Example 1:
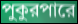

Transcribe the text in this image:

পুকুরপারে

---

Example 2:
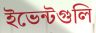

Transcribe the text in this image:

ইভেন্টগুলি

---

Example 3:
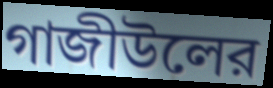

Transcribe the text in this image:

গাজীউলের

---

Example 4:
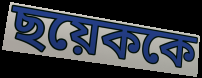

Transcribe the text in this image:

ছয়েককে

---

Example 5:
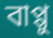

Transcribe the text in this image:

বাপ্পু